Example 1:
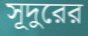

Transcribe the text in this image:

সূদুরের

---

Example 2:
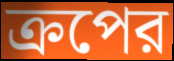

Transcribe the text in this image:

ক্রপের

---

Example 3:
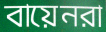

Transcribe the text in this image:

বায়েনরা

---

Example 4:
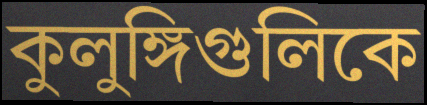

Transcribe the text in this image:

কুলুঙ্গিগুলিকে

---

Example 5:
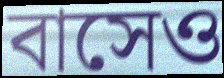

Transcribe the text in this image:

বাসেও